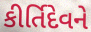
કીર્તિદેવને